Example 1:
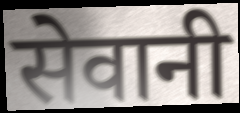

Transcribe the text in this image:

सेवानी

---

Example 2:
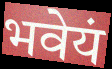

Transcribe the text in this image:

भवेयं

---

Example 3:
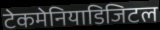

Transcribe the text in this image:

टेकमेनियाडिजिटल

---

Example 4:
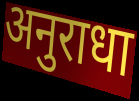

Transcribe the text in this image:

अनुराधा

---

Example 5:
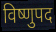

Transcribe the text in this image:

विष्णुपद